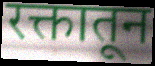
रक्तातून